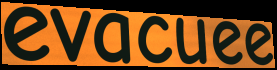
evacuee